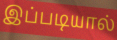
இப்படியால்